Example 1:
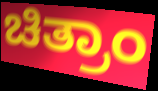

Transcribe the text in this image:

ಚಿತ್ರಾಂ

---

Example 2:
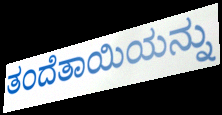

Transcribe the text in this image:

ತಂದೆತಾಯಿಯನ್ನು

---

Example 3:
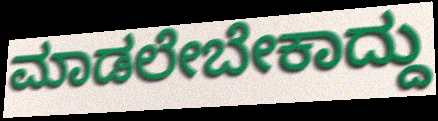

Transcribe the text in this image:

ಮಾಡಲೇಬೇಕಾದ್ದು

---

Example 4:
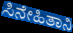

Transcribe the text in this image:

ಸಿನೇಹಿತಾನಿ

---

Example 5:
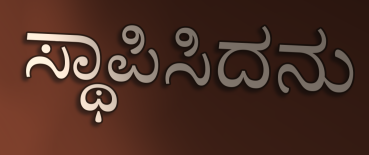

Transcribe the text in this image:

ಸ್ಥಾಪಿಸಿದನು